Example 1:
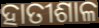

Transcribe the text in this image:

ହାତୀଶାଳ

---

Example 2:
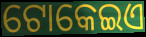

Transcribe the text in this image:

ଟୋକେଇଏ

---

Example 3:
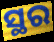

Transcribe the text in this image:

ସ୍ଥର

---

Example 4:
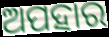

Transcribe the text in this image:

ଅପହାର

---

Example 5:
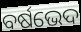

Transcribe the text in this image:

ବର୍ଷଭେଦ